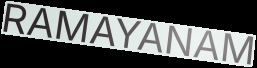
RAMAYANAM